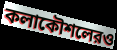
কলাকৌশলেরও